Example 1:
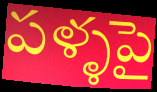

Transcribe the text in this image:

పళ్ళపై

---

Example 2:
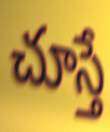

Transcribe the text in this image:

చూస్తే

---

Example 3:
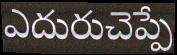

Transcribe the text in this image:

ఎదురుచెప్పే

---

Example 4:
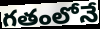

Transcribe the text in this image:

గతంలోనే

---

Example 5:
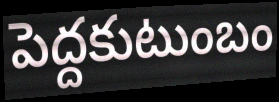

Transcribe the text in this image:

పెద్దకుటుంబం